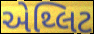
એથ્લિટ